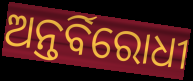
ଅନ୍ତର୍ବିରୋଧୀ